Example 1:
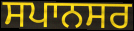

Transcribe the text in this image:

ਸਪਾਨਸਰ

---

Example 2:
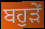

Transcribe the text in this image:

ਬਹੁੜੇਂ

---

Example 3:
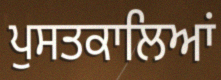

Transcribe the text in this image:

ਪੁਸਤਕਾਲਿਆਂ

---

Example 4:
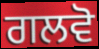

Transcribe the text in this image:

ਗਲਵੋ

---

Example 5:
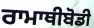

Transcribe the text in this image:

ਰਾਮਾਥੀਬੋਡੀ